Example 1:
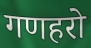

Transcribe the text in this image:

गणहरो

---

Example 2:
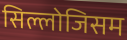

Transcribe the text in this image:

सिल्लोजिसम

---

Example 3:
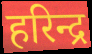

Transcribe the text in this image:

हरिन्द्र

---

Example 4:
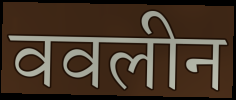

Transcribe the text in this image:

ववलीन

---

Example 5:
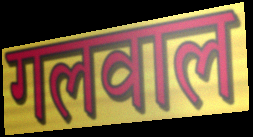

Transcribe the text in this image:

गलवाल